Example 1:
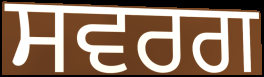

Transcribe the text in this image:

ਸਵਰਗ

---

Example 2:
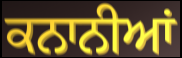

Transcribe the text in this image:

ਕਨਾਨੀਆਂ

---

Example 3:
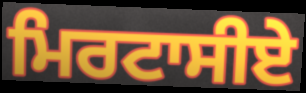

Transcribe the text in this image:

ਮਿਰਟਾਸੀਏ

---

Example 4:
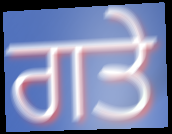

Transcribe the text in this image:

ਗਤੇ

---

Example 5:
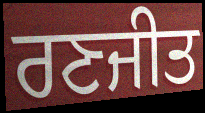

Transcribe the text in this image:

ਰਣਜੀਤ